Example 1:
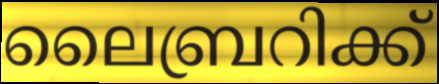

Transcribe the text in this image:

ലൈബ്രറിക്ക്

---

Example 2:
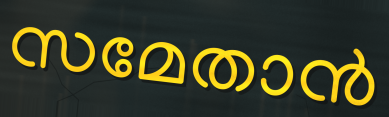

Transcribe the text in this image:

സമേതാൻ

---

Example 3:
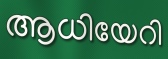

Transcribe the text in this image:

ആധിയേറി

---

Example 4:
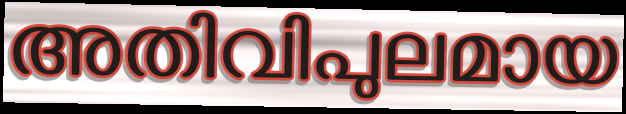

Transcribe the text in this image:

അതിവിപുലമായ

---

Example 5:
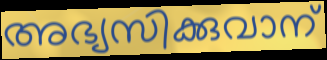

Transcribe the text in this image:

അഭ്യസിക്കുവാന്